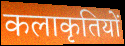
कलाकृतियों